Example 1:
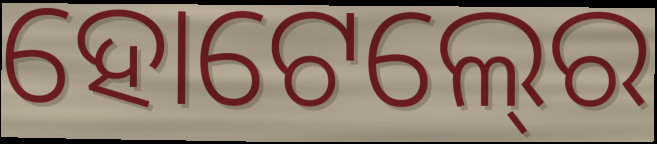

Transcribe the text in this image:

ହୋଟେଲ୍‍ରେ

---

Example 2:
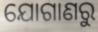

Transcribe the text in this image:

ଯୋଗାଣରୁ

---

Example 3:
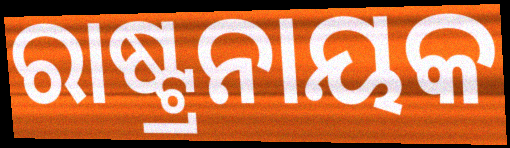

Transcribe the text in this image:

ରାଷ୍ଟ୍ରନାୟକ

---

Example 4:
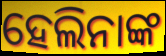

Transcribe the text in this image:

ହେଲିନାଙ୍କ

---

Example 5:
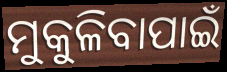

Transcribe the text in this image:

ମୁକୁଳିବାପାଇଁ